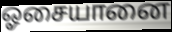
ஓசையானை